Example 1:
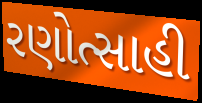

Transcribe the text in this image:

રણોત્સાહી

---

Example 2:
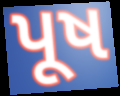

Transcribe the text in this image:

પૂષ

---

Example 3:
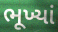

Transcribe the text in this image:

ભૂખ્યાં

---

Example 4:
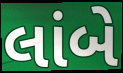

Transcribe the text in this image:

લાંબે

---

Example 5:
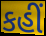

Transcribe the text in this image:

કહીં